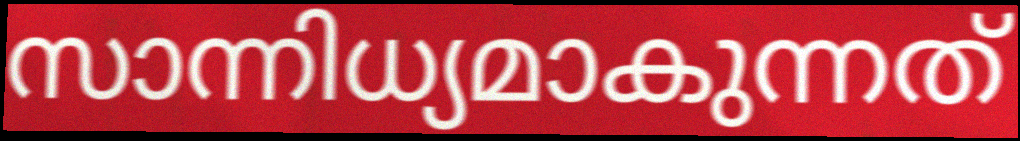
സാന്നിധ്യമാകുന്നത്